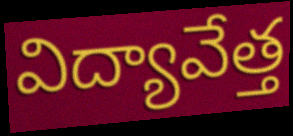
విద్యావేత్త